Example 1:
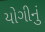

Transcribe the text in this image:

યોગીનું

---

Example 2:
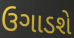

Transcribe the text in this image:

ઉગાડશે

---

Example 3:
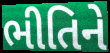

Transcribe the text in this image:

ભીતિને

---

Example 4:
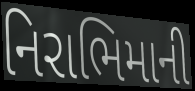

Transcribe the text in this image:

નિરાભિમાની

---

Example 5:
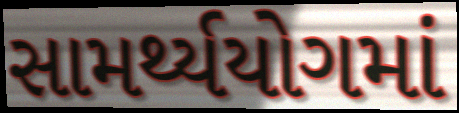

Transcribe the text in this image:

સામર્થ્યયોગમાં